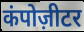
कंपोज़ीटर